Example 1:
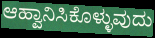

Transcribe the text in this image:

ಆಹ್ವಾನಿಸಿಕೊಳ್ಳುವುದು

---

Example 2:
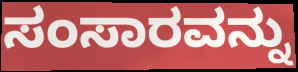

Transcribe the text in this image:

ಸಂಸಾರವನ್ನು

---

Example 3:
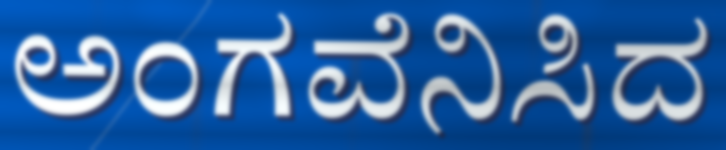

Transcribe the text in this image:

ಅಂಗವೆನಿಸಿದ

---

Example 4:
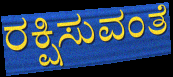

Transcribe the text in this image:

ರಕ್ಷಿಸುವಂತೆ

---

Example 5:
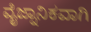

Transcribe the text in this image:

ವೈಜ್ನಾನಿಕವಾಗಿ